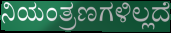
ನಿಯಂತ್ರಣಗಳಿಲ್ಲದೆ